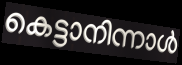
കെട്ടാനിന്നാൾ